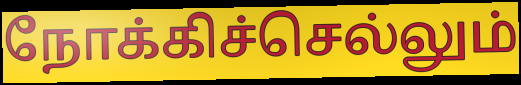
நோக்கிச்செல்லும்